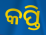
କପ୍ତି